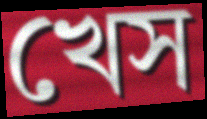
খেস